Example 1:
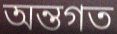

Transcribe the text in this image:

অন্তগত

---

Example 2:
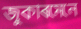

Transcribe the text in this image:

জুকাৰমেনে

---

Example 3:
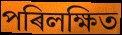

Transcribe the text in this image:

পৰিলক্ষিত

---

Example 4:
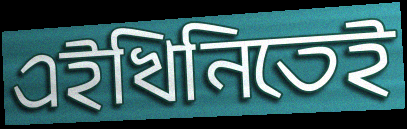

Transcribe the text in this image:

এইখিনিতেই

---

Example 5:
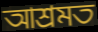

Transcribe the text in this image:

আশ্ৰমত